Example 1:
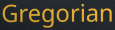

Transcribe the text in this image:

Gregorian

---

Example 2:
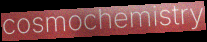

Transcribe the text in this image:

cosmochemistry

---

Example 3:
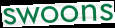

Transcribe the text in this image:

swoons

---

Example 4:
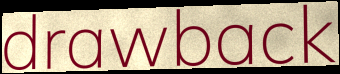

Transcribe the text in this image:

drawback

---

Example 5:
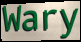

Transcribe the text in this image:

Wary